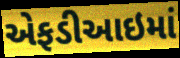
એફડીઆઇમાં